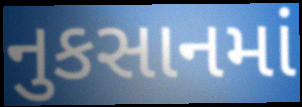
નુકસાનમાં